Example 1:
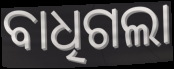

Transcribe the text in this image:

ବାଧିଗଲା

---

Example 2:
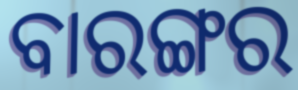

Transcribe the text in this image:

ବାରଙ୍ଗର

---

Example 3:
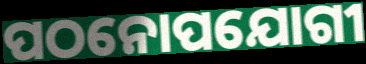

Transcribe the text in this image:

ପଠନୋପଯୋଗୀ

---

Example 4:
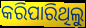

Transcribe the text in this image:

କରିପାରିଥିଲୁ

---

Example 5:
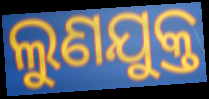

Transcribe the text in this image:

ଲୁଣଯୁକ୍ତ